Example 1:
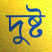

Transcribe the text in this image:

দুষ্ট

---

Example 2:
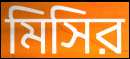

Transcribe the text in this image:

মিসির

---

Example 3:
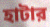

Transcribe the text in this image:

হাটার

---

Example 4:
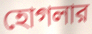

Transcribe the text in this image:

হোগলার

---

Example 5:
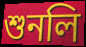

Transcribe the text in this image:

শুনলি